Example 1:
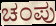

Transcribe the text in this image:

ಚಂಪು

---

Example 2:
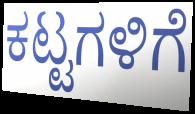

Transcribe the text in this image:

ಕಟ್ಟಗಳಿಗೆ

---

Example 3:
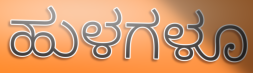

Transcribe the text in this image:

ಹುಳಗಳೂ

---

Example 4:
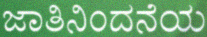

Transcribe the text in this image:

ಜಾತಿನಿಂದನೆಯ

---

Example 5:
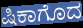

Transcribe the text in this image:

ಷಿಕಾಗೊದ